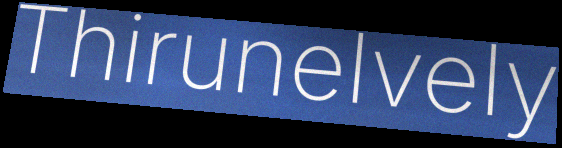
Thirunelvely